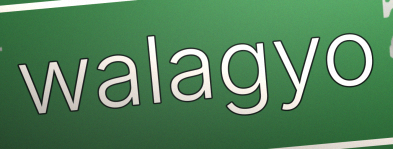
walagyo